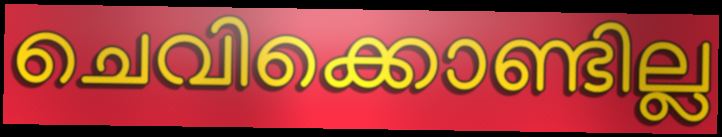
ചെവിക്കൊണ്ടില്ല